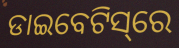
ଡାଇବେଟିସ୍‌ରେ